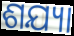
ଶଯ୍ୟା